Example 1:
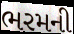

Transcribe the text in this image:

ભરમની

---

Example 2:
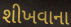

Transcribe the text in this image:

શીખવાના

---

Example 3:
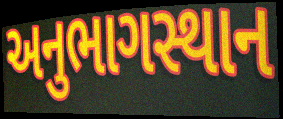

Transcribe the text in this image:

અનુભાગસ્થાન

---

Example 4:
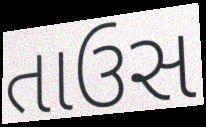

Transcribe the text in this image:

તાઉસ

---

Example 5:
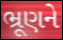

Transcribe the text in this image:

ભ્રૂણને